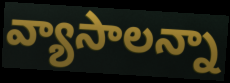
వ్యాసాలన్నా